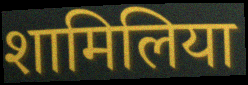
शामिलिया